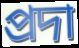
প্রদা